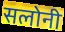
सलोनी